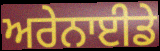
ਅਰੇਨਾਈਡੇ